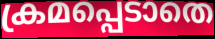
ക്രമപ്പെടാതെ